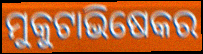
ମୁକୁଟାଭିଷେକର